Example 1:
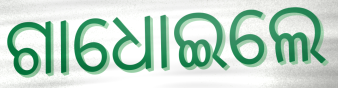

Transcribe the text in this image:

ଗାଧୋଇଲେ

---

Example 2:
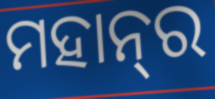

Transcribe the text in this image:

ମହାନ୍‌ର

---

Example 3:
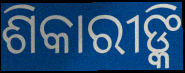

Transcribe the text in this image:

ଶିକାରୀଙ୍କି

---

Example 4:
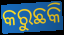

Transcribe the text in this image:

କରୁଛକି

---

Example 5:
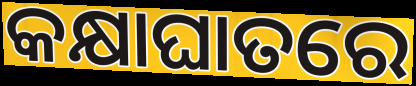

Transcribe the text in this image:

କକ୍ଷାଘାତରେ